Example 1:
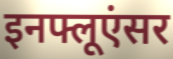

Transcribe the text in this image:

इनफ्लूएंसर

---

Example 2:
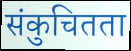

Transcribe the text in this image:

संकुचितता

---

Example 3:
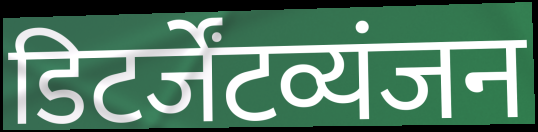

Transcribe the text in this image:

डिटर्जेंटव्यंजन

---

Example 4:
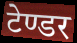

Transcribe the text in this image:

टेण्‍डर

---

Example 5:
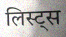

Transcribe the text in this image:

लिस्ट्स